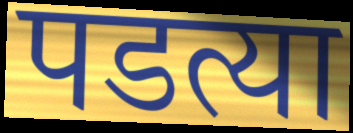
पडत्या